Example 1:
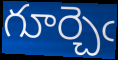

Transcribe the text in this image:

గూర్చెఁ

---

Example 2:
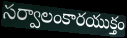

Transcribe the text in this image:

సర్వాలంకారయుక్తం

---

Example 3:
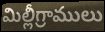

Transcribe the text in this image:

మిల్లీగ్రాములు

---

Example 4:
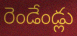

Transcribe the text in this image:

రెండేండ్లు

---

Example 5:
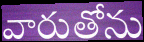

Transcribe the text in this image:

వారుతోను